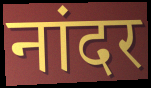
नांदर